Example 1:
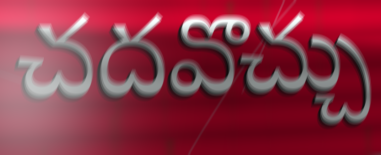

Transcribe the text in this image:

చదవొచ్చు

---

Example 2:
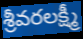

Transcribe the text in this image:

శ్రీవరలక్ష్మీ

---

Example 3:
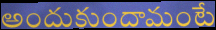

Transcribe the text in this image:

అందుకుందామంటే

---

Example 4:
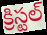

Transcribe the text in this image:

క్రిస్టల్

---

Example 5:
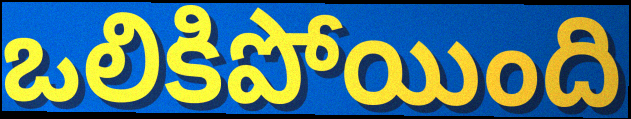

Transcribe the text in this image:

ఒలికిపోయింది